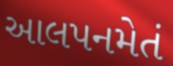
આલપનમેતં